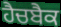
ਹੈਚਬੈਕ